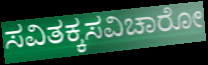
ಸವಿತಕ್ಕಸವಿಚಾರೋ